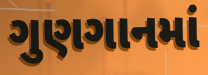
ગુણગાનમાં